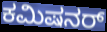
ಕಮಿಷನರ್